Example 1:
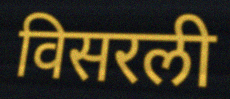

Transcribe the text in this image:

विसरली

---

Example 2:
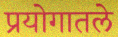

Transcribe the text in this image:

प्रयोगातले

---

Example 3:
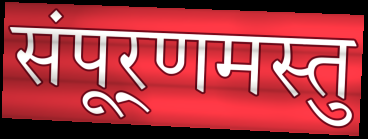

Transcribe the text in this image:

संपूर्णमस्तु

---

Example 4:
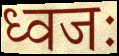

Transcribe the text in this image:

ध्वजः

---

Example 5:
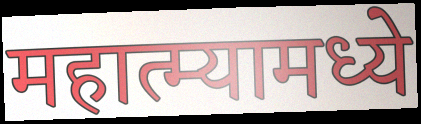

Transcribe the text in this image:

महात्म्यामध्ये